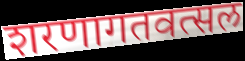
शरणागतवत्सल